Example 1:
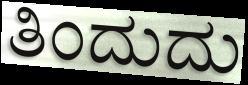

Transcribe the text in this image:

ತಿಂದುದು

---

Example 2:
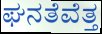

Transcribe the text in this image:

ಘನತೆವೆತ್ತ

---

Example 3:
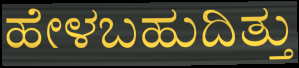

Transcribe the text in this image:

ಹೇಳಬಹುದಿತ್ತು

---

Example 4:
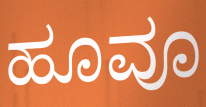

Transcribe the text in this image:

ಹೂವೂ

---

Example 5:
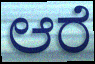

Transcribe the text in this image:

ಆರೆ